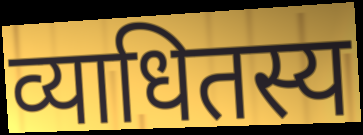
व्याधितस्य